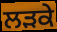
ਲਡ਼ਕੇ